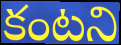
కంటని